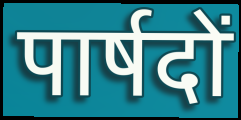
पार्षदों